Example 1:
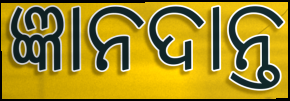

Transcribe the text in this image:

ଜ୍ଞାନଦାନ୍ତ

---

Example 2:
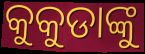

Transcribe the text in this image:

କୁକୁଡାଙ୍କୁ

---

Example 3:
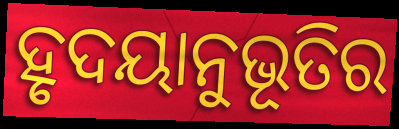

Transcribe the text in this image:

ହୃଦୟାନୁଭୂତିର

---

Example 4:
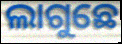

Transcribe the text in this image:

ଲାଗୁଛେ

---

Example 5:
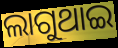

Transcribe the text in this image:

ଲାଗୁଥାଇ